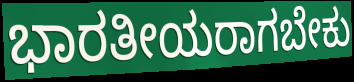
ಭಾರತೀಯರಾಗಬೇಕು